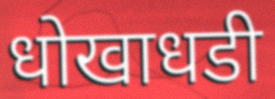
धोखाधडी